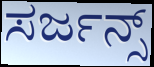
ಸರ್ಜನ್ಸ್